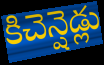
కిచెన్షెడ్లు